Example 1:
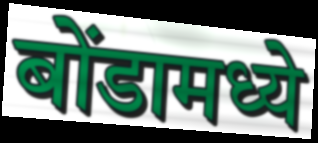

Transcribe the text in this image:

बोंडामध्ये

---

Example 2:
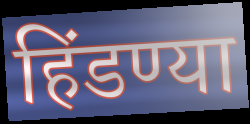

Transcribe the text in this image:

हिंडण्या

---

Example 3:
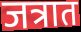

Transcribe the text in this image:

जत्रात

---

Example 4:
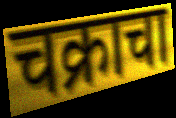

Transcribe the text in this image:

चक्राचा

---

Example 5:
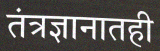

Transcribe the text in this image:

तंत्रज्ञानातही